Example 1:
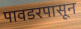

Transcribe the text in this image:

पावडरपासून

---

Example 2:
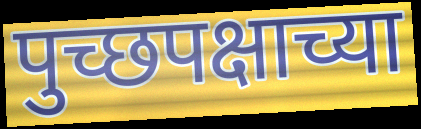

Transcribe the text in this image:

पुच्छपक्षाच्या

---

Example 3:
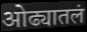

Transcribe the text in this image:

ओढ्यातलं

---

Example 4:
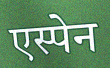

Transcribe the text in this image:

एस्पेन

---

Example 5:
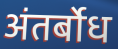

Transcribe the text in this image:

अंतर्बोध